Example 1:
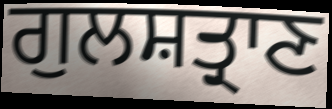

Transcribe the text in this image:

ਗੁਲਸ਼ਤ੍ਰਾਣ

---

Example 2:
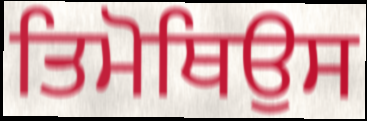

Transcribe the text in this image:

ਤਿਮੋਥਿਉਸ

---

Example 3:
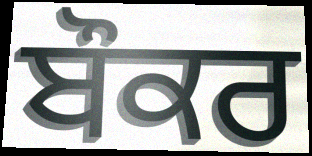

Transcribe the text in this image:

ਬੌਕਰ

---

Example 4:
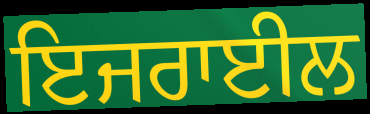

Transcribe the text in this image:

ਇਜਰਾਈਲ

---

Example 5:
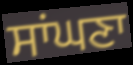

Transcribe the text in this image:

ਸਾਂਘਣਾ